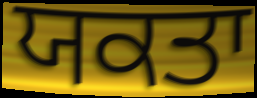
ਯਕਤਾ